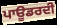
ਪਾਊਡਰਦੀ